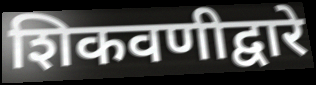
शिकवणीद्वारे